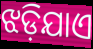
ଝଡ଼ିଯାଏ